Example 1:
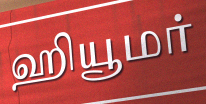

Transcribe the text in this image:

ஹியூமர்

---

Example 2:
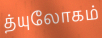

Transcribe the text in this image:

த்யுலோகம்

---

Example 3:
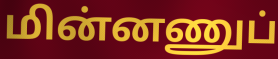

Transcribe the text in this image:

மின்னணுப்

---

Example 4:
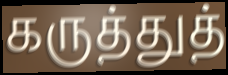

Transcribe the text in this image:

கருத்துத்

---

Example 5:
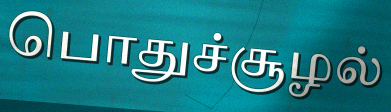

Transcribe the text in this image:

பொதுச்சூழல்